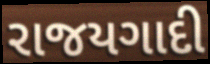
રાજયગાદી